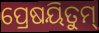
ପ୍ରେଷୟିତୁମ୍